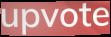
upvote